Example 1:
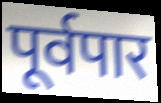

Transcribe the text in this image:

पूर्वपार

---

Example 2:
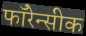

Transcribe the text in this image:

फॉरेन्सीक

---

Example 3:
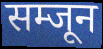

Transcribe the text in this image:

सम्जून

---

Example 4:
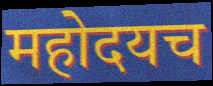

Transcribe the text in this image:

महोदयच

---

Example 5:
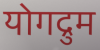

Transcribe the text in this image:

योगद्रुम